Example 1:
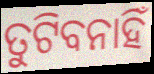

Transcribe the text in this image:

ତୁଟିବନାହିଁ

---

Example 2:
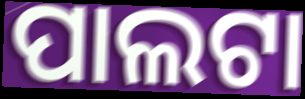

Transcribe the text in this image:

ପାଲଟା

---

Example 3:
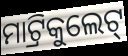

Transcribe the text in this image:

ମାଟ୍ରିକୁଲେଟ୍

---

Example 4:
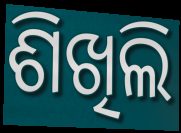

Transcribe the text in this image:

ଶିଖିଲି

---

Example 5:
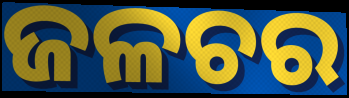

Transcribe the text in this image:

ଜଳଚର